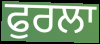
ਫੁਰਲਾ